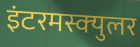
इंटरमस्क्युलर